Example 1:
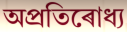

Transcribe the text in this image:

অপ্ৰতিৰোধ্য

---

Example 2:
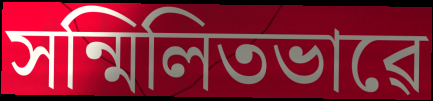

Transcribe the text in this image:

সন্মিলিতভাৱে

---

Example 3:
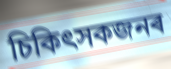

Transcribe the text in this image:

চিকিৎসকজনৰ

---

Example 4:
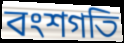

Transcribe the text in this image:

বংশগতি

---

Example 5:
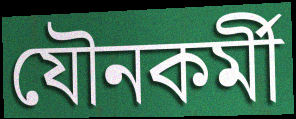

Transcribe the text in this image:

যৌনকৰ্মী